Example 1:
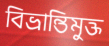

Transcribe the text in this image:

বিভ্রান্তিমুক্ত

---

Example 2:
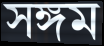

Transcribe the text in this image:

সঙ্গম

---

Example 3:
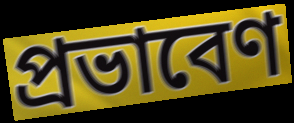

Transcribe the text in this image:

প্রভাবেণ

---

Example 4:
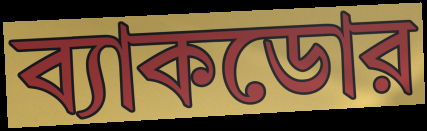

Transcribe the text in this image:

ব্যাকডোর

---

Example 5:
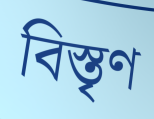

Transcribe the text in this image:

বিস্তৃণ